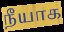
நீயாக